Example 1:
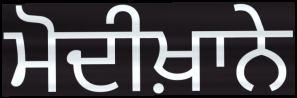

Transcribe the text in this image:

ਮੋਦੀਖ਼ਾਨੇ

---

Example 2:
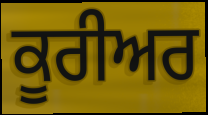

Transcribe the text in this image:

ਕੂਰੀਅਰ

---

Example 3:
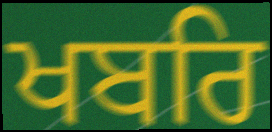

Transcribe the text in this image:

ਖਬਰਿ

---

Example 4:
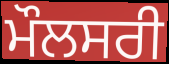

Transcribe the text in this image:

ਮੌਲਸਰੀ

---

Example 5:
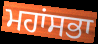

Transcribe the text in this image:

ਮਹਾਂਸਭਾ